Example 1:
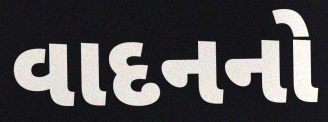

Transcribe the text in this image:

વાદનનો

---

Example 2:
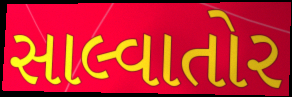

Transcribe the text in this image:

સાલ્વાતોર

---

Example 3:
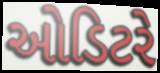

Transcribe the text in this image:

ઓડિટરે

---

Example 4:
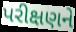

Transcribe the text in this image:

પરીક્ષણને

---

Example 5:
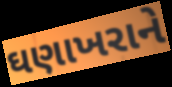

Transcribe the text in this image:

ઘણાખરાને